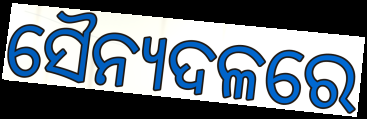
ସୈନ୍ୟଦଳରେ